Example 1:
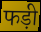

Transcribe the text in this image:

फड़ी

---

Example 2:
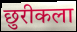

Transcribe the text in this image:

छुरीकला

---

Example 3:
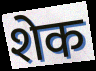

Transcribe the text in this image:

शेक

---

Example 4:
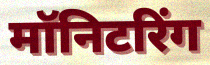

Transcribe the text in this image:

मॉनिटरिंग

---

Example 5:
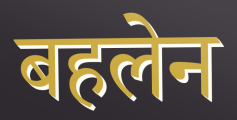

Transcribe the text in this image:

बहलेन